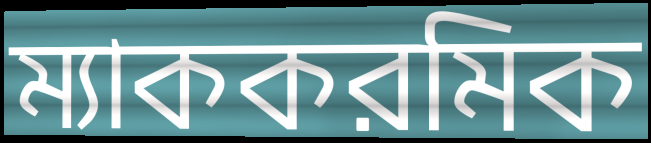
ম্যাককরমিক